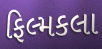
ફિલ્મકલા